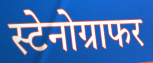
स्टेनोग्राफर